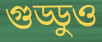
গুড্ডুও